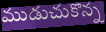
ముడుచుకొన్న